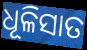
ଧୂଳିସାତ